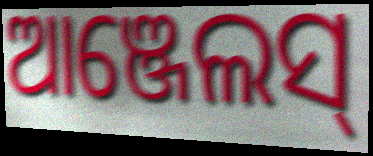
ଆଞ୍ଜେଲସ୍